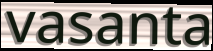
vasanta